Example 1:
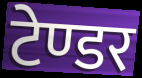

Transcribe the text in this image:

टेण्‍डर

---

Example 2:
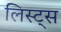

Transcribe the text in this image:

लिस्ट्स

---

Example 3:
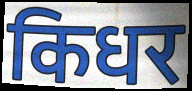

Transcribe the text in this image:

किधर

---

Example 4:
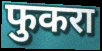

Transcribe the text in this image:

फुकरा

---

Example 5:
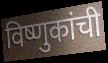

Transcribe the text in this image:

विष्णुकांची